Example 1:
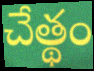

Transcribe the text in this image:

చేత్థం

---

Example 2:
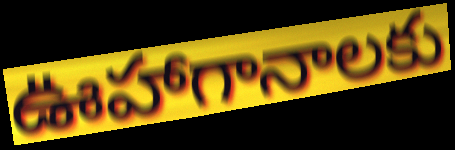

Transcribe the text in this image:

ఊహాగానాలకు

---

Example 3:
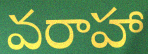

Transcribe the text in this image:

వరాహా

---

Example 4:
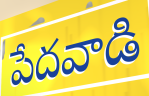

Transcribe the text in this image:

పేదవాడి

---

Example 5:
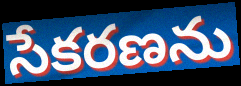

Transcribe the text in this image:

సేకరణను